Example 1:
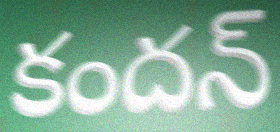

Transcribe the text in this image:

కందన్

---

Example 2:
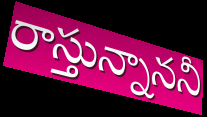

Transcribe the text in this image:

రాస్తున్నాననీ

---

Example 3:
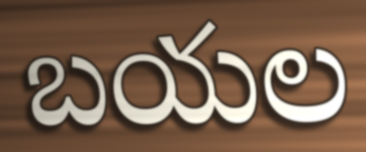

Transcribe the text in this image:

బయల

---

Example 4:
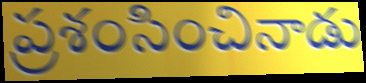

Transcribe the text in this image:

ప్రశంసించినాడు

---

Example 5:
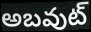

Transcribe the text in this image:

అబవుట్